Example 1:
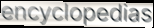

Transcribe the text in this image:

encyclopedias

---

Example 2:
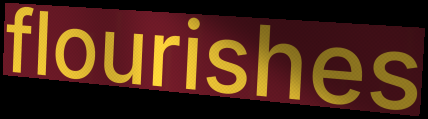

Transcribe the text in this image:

flourishes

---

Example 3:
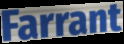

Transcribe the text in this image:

Farrant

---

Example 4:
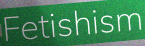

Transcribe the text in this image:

Fetishism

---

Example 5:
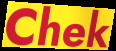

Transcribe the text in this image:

Chek